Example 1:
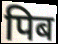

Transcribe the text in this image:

पिब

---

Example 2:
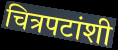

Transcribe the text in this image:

चित्रपटांशी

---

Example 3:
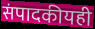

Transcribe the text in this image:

संपादकीयही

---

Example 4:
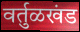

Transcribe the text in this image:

वर्तुळखंड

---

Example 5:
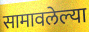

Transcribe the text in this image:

सामावलेल्या